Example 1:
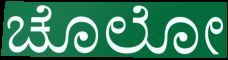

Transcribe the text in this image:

ಚೊಲೋ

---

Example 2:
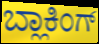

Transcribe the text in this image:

ಬ್ಲಾಕಿಂಗ್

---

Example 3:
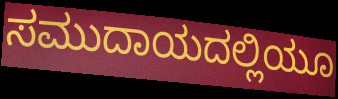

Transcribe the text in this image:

ಸಮುದಾಯದಲ್ಲಿಯೂ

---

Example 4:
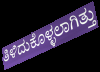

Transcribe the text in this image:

ತಿಳಿದುಕೊಳ್ಳಲಾಗಿತ್ತು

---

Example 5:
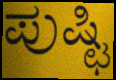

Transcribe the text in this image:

ಪುಷ್ಟಿ